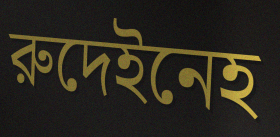
রুদেইনেহ